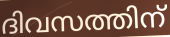
ദിവസത്തിന്